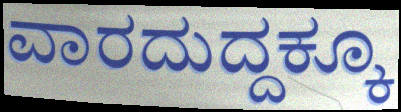
ವಾರದುದ್ದಕ್ಕೂ